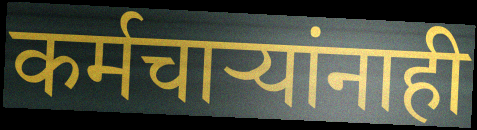
कर्मचार्‍यांनाही